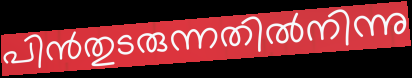
പിൻതുടരുന്നതിൽനിന്നു